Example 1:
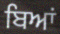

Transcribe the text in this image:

ਬਿਆਂ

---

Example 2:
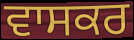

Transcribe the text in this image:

ਵਾਸਕਰ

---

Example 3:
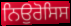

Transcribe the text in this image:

ਨਿਉਰੋਸਿਸ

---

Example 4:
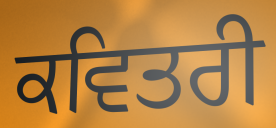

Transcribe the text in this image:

ਕਵਿਤਰੀ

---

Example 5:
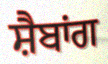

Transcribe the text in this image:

ਸ਼ੈਬਾਂਗ